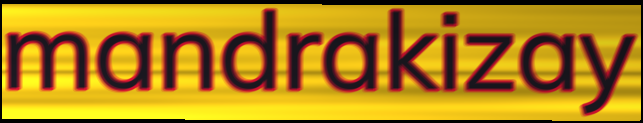
mandrakizay